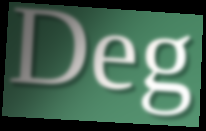
Deg